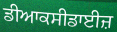
ਡੀਆਕਸੀਡਾਈਜ਼